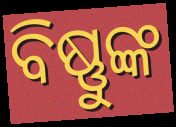
ବିଷ୍ଣୁଙ୍କ